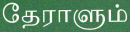
தேராளும்